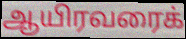
ஆயிரவரைக்